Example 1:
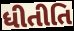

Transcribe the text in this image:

ધીતીતિ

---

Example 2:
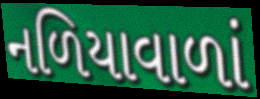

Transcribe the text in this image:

નળિયાવાળાં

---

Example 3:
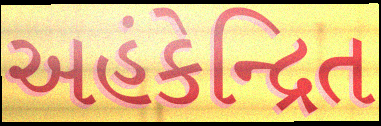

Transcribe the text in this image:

અહંકેન્દ્રિત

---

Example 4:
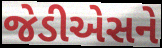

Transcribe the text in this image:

જેડીએસને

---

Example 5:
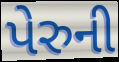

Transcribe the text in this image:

પેરુની